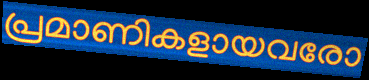
പ്രമാണികളായവരോ